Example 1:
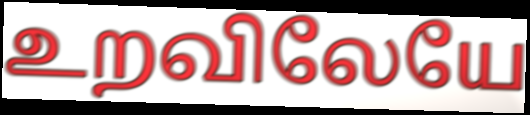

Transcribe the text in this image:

உறவிலேயே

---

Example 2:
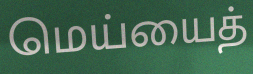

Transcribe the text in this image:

மெய்யைத்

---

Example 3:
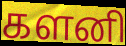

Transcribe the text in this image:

களனி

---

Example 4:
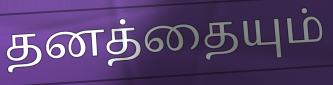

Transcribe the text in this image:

தனத்தையும்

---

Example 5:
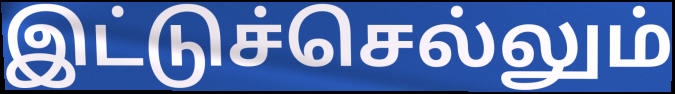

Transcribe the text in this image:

இட்டுச்செல்லும்